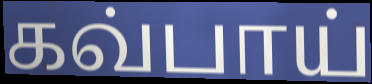
கவ்பாய்